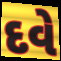
દવે